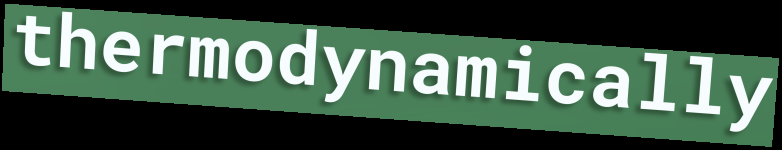
thermodynamically